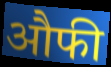
औफी